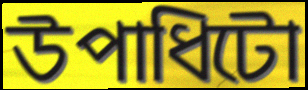
উপাধিটো